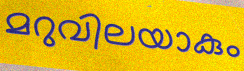
മറുവിലയാകും